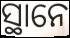
ସ୍ଥାନେ